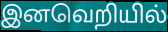
இனவெறியில்